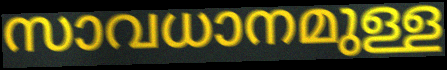
സാവധാനമുള്ള